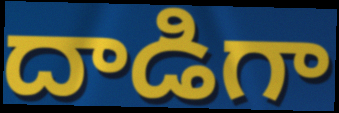
దాడిగా